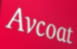
Avcoat